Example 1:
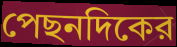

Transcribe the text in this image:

পেছনদিকের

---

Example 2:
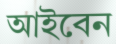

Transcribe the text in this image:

আইবেন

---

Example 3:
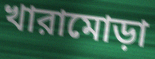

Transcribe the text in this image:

খারামোড়া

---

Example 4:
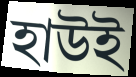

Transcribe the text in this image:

হাউই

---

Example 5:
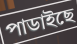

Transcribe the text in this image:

পাডাইছে